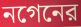
নগেনের